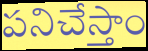
పనిచేస్తాం